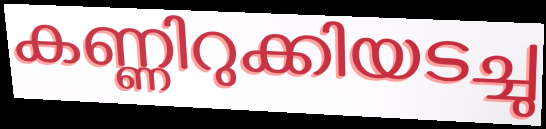
കണ്ണിറുക്കിയടച്ചു